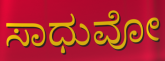
ಸಾಧುವೋ